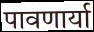
पावणार्या